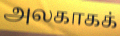
அலகாகக்